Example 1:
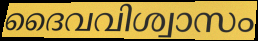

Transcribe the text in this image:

ദൈവവിശ്വാസം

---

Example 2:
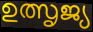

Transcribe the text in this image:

ഉത്സൃജ്യ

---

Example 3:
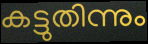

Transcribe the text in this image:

കട്ടുതിന്നും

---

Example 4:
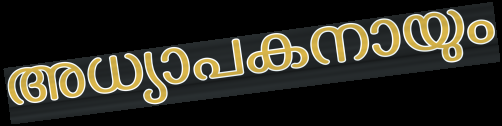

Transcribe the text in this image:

അധ്യാപകനായും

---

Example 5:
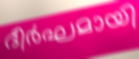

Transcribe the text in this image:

ദീർഘമായി